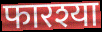
फारश्या